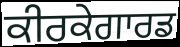
ਕੀਰਕੇਗਾਰਡ